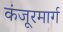
कंजूरमार्ग